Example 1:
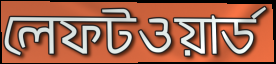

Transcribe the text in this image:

লেফটওয়ার্ড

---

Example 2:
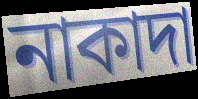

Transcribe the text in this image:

নাকাদা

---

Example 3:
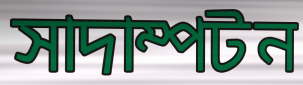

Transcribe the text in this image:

সাদাম্পটন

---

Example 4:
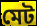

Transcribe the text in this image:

মেট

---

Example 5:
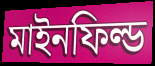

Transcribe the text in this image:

মাইনফিল্ড